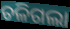
ଚଳିଗଲା